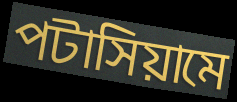
পটাসিয়ামে